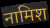
नामिश